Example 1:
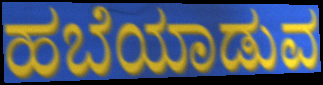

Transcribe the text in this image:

ಹಬೆಯಾಡುವ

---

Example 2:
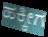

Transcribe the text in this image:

ಹಕ್ಕೀಗ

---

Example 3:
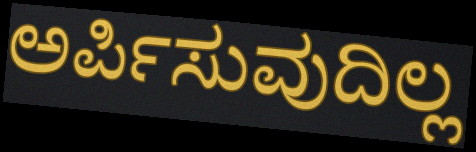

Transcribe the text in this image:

ಅರ್ಪಿಸುವುದಿಲ್ಲ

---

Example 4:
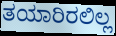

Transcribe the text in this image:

ತಯಾರಿರಲಿಲ್ಲ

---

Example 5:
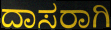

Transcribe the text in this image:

ದಾಸರಾಗಿ